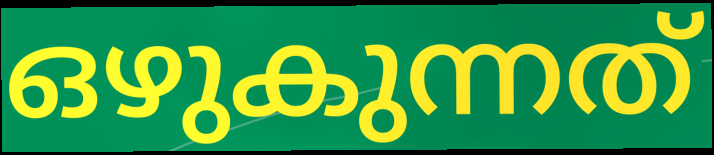
ഒഴുകുന്നത്